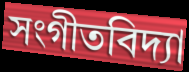
সংগীতবিদ্যা